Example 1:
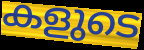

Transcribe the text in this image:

കളുടെ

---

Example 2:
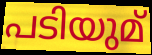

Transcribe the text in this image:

പടിയുമ്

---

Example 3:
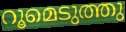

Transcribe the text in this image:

റൂമെടുത്തു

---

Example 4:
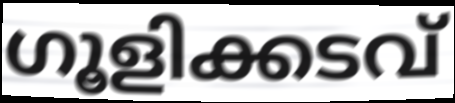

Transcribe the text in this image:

ഗൂളിക്കടവ്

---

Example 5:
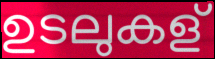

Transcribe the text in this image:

ഉടലുകള്